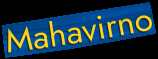
Mahavirno